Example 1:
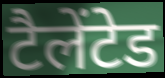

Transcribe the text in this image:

टैलेंटेड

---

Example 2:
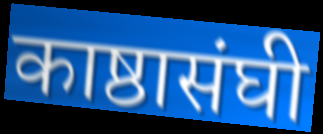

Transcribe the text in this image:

काष्ठासंघी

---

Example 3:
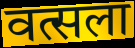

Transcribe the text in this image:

वत्‍सला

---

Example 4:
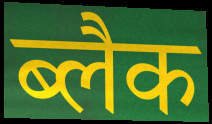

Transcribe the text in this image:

ब्लैक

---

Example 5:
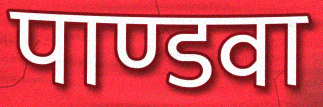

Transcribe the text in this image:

पाण्डवा